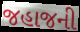
જહાજની